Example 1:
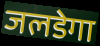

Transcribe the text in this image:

जलडेगा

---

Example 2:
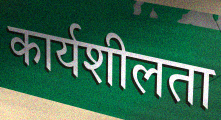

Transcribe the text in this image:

कार्यशीलता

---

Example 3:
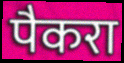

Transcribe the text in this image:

पैकरा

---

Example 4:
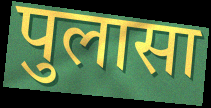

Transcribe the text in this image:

पुलासा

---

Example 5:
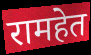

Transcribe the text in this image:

रामहेत